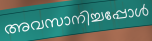
അവസാനിച്ചപ്പോൾ